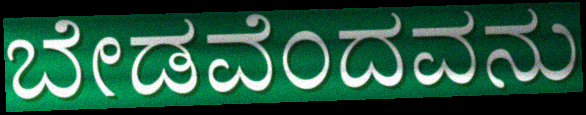
ಬೇಡವೆಂದವನು